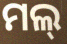
ମଲ୍